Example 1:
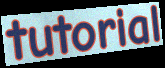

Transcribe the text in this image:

tutorial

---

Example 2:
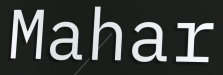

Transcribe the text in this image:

Mahar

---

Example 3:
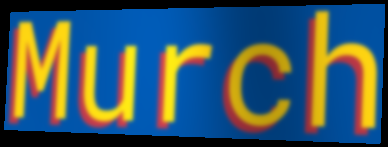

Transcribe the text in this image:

Murch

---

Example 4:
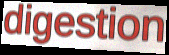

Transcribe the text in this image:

digestion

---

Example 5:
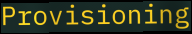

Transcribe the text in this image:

Provisioning